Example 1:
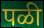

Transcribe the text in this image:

पळी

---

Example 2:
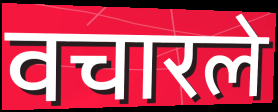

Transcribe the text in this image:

वचारले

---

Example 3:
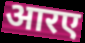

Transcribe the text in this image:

आरए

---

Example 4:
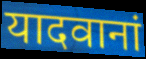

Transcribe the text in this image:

यादवानां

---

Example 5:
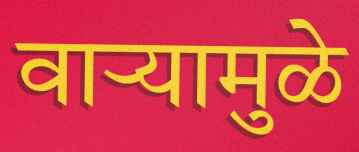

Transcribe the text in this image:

वाऱ्यामुळे